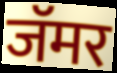
जॅमर